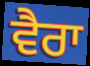
ਵੈਰਾ